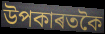
উপকাৰতকৈ